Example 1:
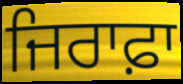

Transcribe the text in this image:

ਜਿਰਾਫ਼ਾ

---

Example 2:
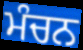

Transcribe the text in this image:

ਮੰਚਨ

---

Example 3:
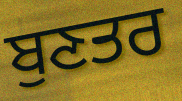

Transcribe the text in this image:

ਬੁਣਤਰ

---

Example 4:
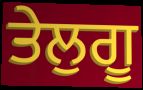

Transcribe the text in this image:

ਤੇਲੁਗੂ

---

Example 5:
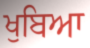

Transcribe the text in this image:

ਖੁਬਿਆ